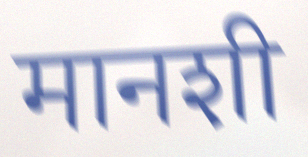
मानशी